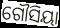
ଗୌସିୟା